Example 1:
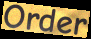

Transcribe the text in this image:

Order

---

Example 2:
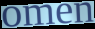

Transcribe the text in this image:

omen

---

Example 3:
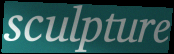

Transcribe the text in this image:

sculpture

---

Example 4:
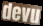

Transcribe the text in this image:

devu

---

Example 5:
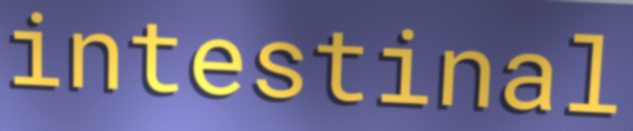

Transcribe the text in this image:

intestinal